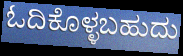
ಓದಿಕೊಳ್ಳಬಹುದು